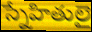
స్నేహితులై